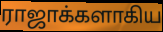
ராஜாக்களாகிய